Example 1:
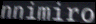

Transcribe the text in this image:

nnimiro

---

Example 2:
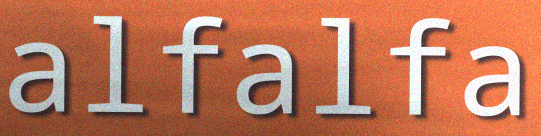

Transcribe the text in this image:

alfalfa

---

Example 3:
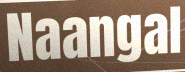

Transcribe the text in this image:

Naangal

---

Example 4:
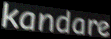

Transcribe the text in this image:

kandare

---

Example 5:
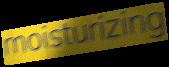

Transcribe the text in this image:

moisturizing